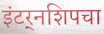
इंटर्नशिपचा